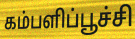
கம்பளிப்பூச்சி